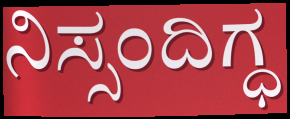
ನಿಸ್ಸಂದಿಗ್ಧ